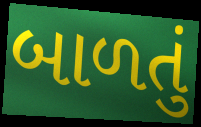
બાળતું